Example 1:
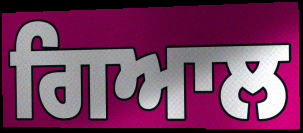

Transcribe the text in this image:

ਗਿਆਲ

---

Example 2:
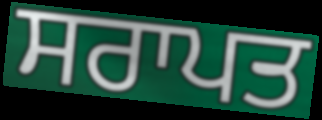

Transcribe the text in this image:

ਸਰਾਪਤ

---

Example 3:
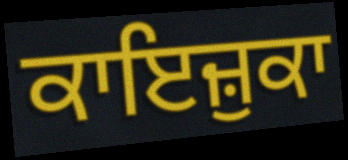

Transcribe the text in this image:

ਕਾਇਜ਼ੁਕਾ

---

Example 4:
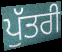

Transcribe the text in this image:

ਪੁੱਤਰੀ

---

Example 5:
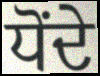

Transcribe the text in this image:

ਧੋਂਦੇ